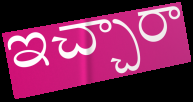
ఇచ్చారా